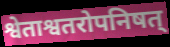
श्वेताश्वतरोपनिषत्